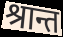
श्रान्त